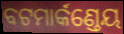
ବଟମାର୍କଣ୍ଡେୟ